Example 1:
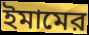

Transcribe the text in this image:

ইমামের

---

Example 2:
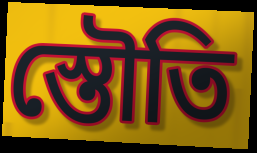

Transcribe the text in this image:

স্তৌতি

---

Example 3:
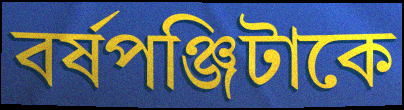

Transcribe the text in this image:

বর্ষপঞ্জিটাকে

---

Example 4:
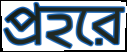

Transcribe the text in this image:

প্রহরে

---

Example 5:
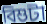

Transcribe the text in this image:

বিশুটা